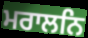
ਮਰਾਲਨਿ